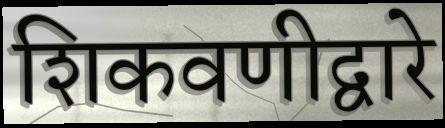
शिकवणीद्वारे